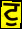
ਟੁ